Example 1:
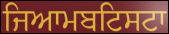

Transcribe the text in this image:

ਜਿਆਮਬਟਿਸਟਾ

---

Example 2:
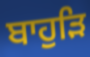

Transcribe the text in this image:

ਬਾਹੁੜਿ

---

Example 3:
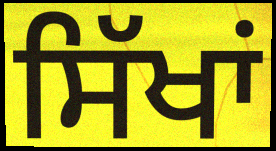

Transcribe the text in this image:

ਸਿੱਖਾਂ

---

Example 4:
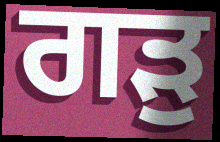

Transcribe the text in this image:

ਗੜੁ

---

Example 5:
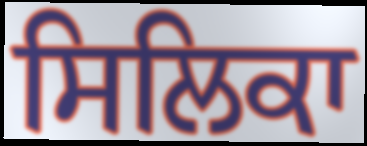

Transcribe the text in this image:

ਸਿਲਿਕਾ